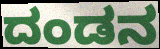
ದಂಡನ